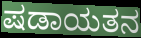
ಷಡಾಯತನ